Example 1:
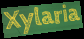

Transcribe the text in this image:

Xylaria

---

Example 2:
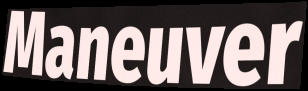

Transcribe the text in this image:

Maneuver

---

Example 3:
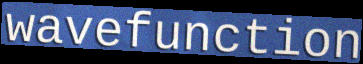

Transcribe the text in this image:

wavefunction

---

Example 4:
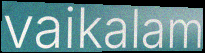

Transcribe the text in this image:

vaikalam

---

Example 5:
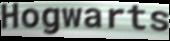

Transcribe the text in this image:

Hogwarts